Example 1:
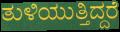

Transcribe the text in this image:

ತುಳಿಯುತ್ತಿದ್ದರೆ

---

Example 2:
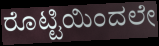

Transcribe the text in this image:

ರೊಟ್ಟಿಯಿಂದಲೇ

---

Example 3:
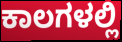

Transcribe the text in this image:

ಕಾಲಗಳಲ್ಲಿ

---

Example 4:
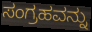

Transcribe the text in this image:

ಸಂಗ್ರಹವನ್ನು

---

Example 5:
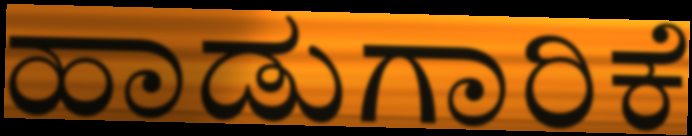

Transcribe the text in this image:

ಹಾಡುಗಾರಿಕೆ